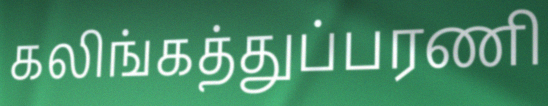
கலிங்கத்துப்பரணி